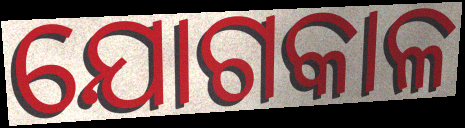
ଯୋଗକାଳ